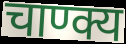
चाण्क्य